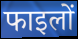
फाइलों